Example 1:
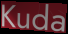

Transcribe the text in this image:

Kuda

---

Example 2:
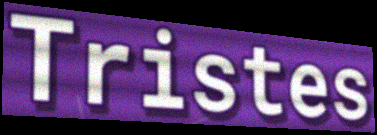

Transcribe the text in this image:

Tristes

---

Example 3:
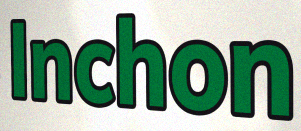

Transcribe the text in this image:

Inchon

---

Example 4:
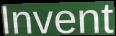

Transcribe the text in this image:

Invent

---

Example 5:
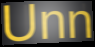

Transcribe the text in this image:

Unn